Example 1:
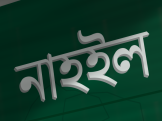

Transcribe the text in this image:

নাহইল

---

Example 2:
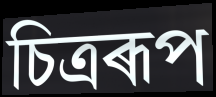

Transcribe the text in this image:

চিত্ৰৰূপ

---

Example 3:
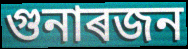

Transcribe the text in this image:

গুনাৰজন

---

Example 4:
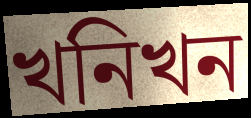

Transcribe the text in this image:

খনিখন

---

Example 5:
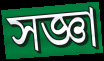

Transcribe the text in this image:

সজ্ঞা